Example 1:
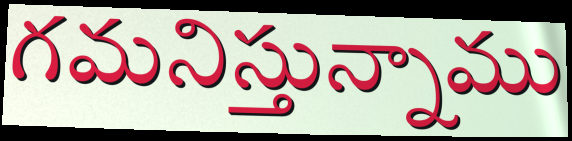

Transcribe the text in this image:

గమనిస్తున్నాము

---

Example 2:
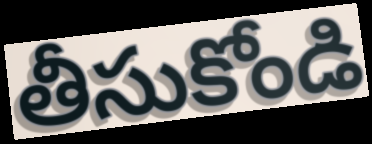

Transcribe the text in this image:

తీసుకోండి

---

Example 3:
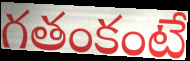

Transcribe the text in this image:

గతంకంటే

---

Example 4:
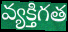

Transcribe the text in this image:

వ్యక్తిగత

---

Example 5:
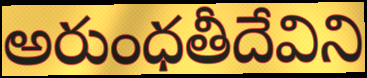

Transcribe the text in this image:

అరుంధతీదేవిని